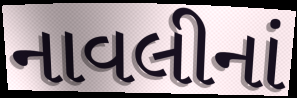
નાવલીનાં